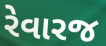
રેવારજ